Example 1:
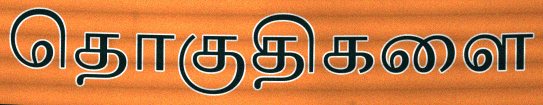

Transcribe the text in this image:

தொகுதிகளை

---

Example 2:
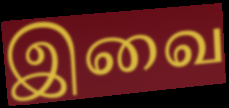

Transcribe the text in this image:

இவை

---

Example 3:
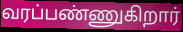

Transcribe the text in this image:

வரப்பண்ணுகிறார்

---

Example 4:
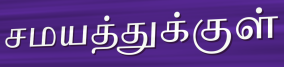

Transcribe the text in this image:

சமயத்துக்குள்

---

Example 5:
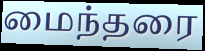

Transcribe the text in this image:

மைந்தரை